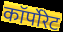
कॉर्पोरेट